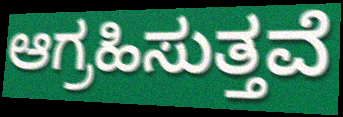
ಆಗ್ರಹಿಸುತ್ತವೆ